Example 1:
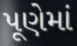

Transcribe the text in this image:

પૂણેમાં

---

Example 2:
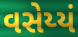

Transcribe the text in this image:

વસેય્યં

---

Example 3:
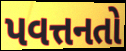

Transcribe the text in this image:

પવત્તનતો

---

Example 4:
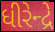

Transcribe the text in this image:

ધીરેન્દ્રે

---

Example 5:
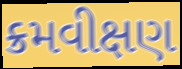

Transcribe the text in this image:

ક્રમવીક્ષણ